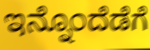
ಇನ್ನೊಂದೆಡೆಗೆ